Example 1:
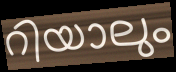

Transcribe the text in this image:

റിയാലും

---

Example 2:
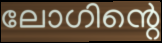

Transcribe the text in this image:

ലോഗിന്റെ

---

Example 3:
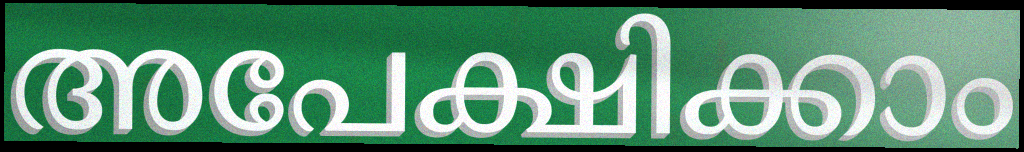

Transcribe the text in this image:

അപേക്ഷിക്കാം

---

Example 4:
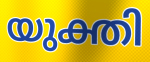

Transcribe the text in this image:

യുക്തി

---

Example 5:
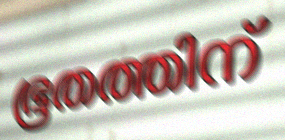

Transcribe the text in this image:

ഭൂതത്തിന്